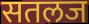
सतलज